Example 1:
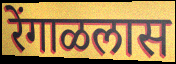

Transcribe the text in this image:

रेंगाळलास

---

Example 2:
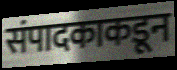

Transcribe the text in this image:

संपादकाकडून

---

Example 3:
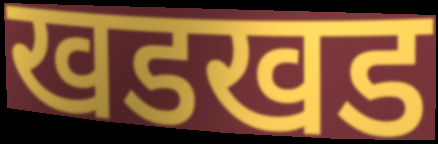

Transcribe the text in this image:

खडखड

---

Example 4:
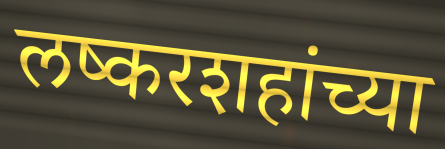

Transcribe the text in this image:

लष्करशहांच्या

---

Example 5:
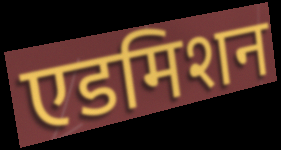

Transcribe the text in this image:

एडमिशन